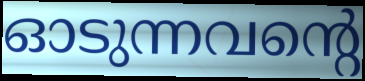
ഓടുന്നവന്റെ